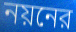
নয়নের